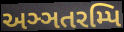
અઞ્ઞતરમ્પિ